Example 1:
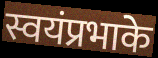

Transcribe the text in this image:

स्वयंप्रभाके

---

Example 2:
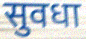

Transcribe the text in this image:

सुवधा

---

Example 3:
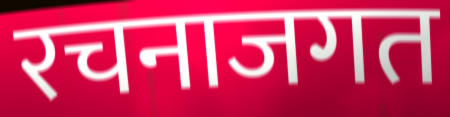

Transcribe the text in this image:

रचनाजगत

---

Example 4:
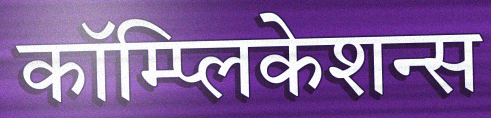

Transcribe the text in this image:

कॉम्प्लिकेशन्स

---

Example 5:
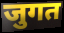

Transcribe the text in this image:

जुगत